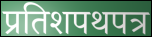
प्रतिशपथपत्र